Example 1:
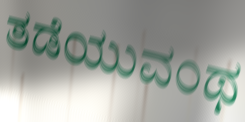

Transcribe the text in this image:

ತಡೆಯುವಂಥ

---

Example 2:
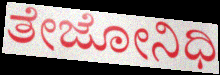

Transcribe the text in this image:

ತೇಜೋನಿಧಿ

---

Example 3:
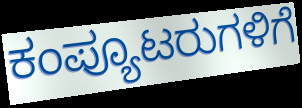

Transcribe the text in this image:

ಕಂಪ್ಯೂಟರುಗಳಿಗೆ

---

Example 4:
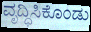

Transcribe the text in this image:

ವೃದ್ಧಿಸಿಕೊಂಡು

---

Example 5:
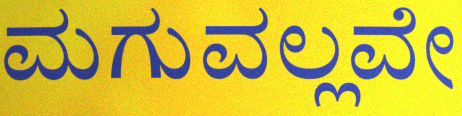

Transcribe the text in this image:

ಮಗುವಲ್ಲವೇ